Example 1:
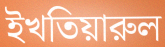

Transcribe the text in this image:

ইখতিয়ারুল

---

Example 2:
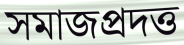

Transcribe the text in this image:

সমাজপ্রদত্ত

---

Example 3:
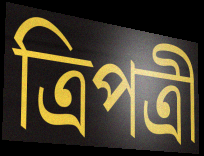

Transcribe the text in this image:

ত্রিপত্রী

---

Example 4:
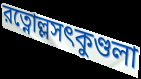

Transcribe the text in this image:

রত্নোল্লসৎকুণ্ডলা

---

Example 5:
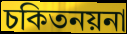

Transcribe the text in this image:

চকিতনয়না